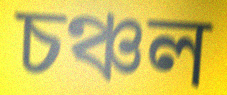
চঞ্চল